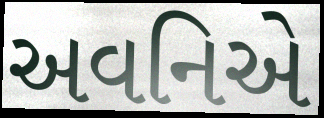
અવનિએ